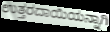
ಉತ್ತರದಾಯಿಯನ್ನಾಗಿ